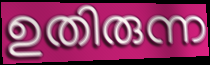
ഉതിരുന്ന